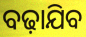
ବଢ଼ାଯିବ